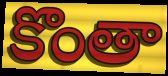
కొంతా